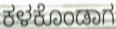
ಕಳಕೊಂಡಾಗ